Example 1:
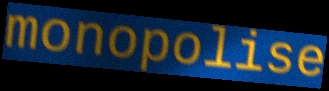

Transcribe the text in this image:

monopolise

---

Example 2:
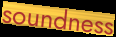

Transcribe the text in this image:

soundness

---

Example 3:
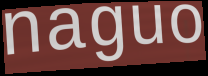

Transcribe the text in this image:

naguo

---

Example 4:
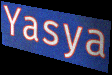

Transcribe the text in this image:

Yasya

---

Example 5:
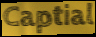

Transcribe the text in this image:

Captial